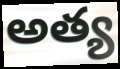
అత్య